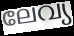
ലേവ്യ